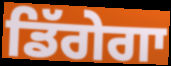
ਡਿੱਗੇਗਾ